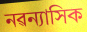
নৱন্যাসিক